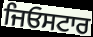
ਜਿਓਸਟਾਰ